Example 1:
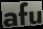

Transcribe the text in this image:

afu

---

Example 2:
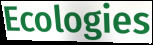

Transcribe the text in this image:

Ecologies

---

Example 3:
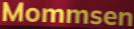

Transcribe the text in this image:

Mommsen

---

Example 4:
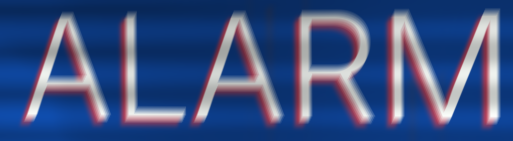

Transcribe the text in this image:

ALARM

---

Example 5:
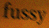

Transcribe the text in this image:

fussy